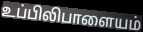
உப்பிலிபாளையம்